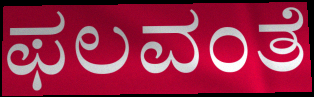
ಫಲವಂತೆ